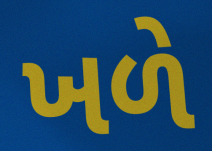
ખળે